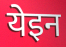
येइन